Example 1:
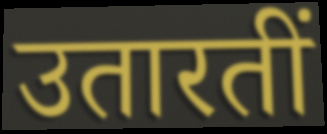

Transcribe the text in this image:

उतारतीं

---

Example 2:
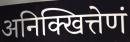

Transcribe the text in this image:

अनिक्खित्तेणं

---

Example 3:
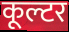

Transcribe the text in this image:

कूल्‍टर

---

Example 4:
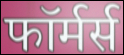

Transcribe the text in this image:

फॉर्मर्स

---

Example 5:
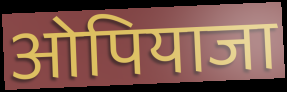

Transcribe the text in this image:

ओपियाजा